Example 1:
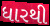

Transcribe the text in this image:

ધારથી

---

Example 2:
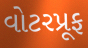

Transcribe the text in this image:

વોટરપ્રૂફ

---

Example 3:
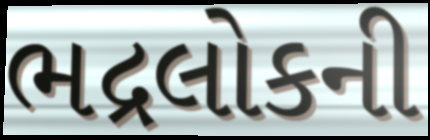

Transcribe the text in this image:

ભદ્રલોકની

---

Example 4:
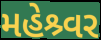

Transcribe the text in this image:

મહેશ્ર્વર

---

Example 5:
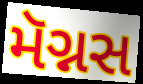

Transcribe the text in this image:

મૅગ્નસ